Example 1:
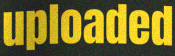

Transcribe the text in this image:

uploaded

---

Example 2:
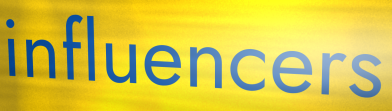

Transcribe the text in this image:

influencers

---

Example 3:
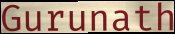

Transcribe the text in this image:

Gurunath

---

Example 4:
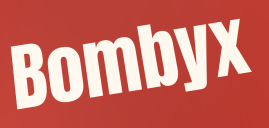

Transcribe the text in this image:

Bombyx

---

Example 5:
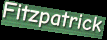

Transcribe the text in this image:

Fitzpatrick